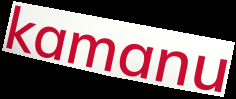
kamanu